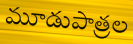
మూడుపాత్రల